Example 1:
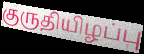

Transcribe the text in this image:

குருதியிழப்பு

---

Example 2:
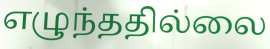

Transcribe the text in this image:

எழுந்ததில்லை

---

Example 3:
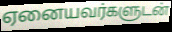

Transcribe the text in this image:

ஏனையவர்களுடன்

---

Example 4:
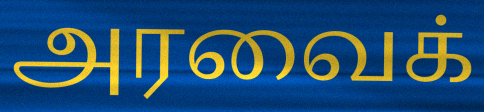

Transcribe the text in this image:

அரவைக்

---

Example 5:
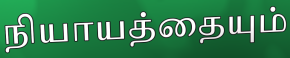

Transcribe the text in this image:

நியாயத்தையும்